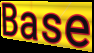
Base